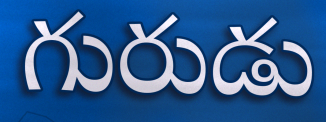
గురుడు